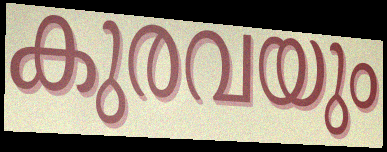
കുരവയും